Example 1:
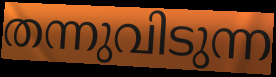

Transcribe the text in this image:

തന്നുവിടുന്ന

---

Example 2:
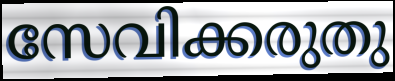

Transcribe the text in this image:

സേവിക്കരുതു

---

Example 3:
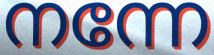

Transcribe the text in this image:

നന്നേ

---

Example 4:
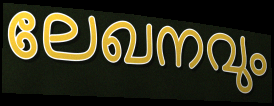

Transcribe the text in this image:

ലേഖനവും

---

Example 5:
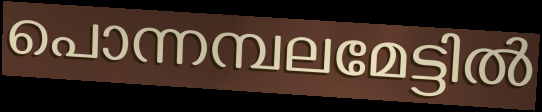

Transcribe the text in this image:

പൊന്നമ്പലമേട്ടിൽ